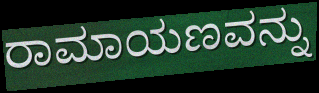
ರಾಮಾಯಣವನ್ನು